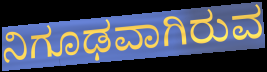
ನಿಗೂಢವಾಗಿರುವ